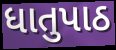
ધાતુપાઠ